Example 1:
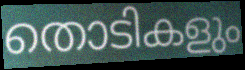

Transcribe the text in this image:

തൊടികളും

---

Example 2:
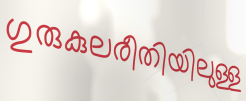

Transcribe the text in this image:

ഗുരുകുലരീതിയിലുള്ള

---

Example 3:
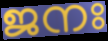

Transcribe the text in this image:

ജനഃ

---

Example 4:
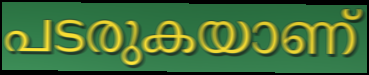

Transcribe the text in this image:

പടരുകയാണ്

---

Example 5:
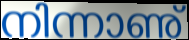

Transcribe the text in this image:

നിന്നാണു്